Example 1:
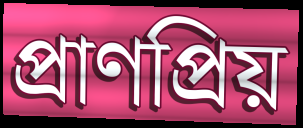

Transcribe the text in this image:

প্রাণপ্রিয়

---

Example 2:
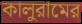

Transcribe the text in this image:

কালুরামের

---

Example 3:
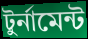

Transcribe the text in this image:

টুর্নামেন্ট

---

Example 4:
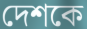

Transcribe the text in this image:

দেশকে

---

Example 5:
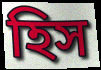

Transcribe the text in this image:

হিস